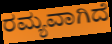
ರಮ್ಯವಾಗಿದೆ